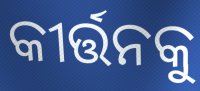
କୀର୍ତ୍ତନକୁ